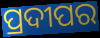
ପ୍ରଦୀପର